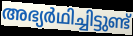
അഭ്യർഥിച്ചിട്ടുണ്ട്